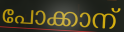
പോക്കാന്